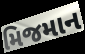
મિજમાન